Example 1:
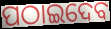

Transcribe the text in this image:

ପଠାଇଦେବ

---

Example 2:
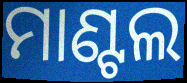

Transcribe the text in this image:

ମାଣ୍ଟଲ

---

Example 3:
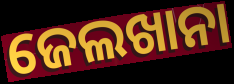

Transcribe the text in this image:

ଜେଲଖାନା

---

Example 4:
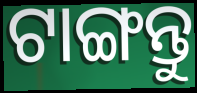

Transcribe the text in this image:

ଟାଙ୍ଗନ୍ତୁ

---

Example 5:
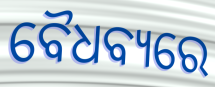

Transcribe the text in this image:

ବୈଧବ୍ୟରେ